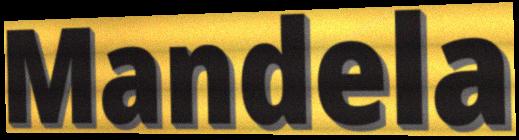
Mandela